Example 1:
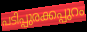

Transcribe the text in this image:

പടിപ്പുരക്കപ്പുറം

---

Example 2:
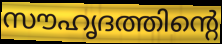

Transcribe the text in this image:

സൗഹൃദത്തിന്റെ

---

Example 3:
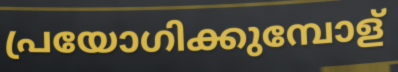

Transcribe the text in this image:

പ്രയോഗിക്കുമ്പോള്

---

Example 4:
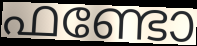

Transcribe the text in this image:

ഫണ്ടോ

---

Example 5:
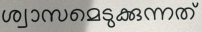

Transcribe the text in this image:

ശ്വാസമെടുക്കുന്നത്